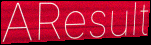
AResult